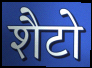
शैटो